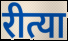
रीत्या